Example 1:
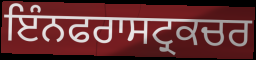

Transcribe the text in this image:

ਇੰਨਫਰਾਸਟ੍ਰਕਚਰ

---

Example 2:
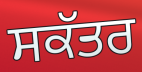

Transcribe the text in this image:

ਸਕੱਤਰ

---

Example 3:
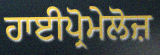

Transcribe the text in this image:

ਹਾਈਪ੍ਰੋਮੇਲੋਜ਼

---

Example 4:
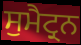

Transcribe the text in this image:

ਸੁਮੈਟ੍ਰਨ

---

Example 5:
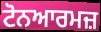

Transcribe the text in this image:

ਟੋਨਆਰਮਜ਼